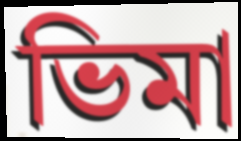
ভিমা